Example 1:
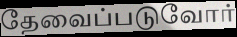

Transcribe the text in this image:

தேவைப்படுவோர்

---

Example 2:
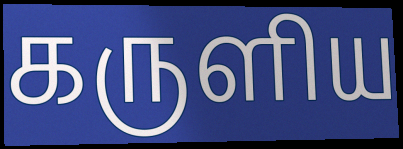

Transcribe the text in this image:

கருளிய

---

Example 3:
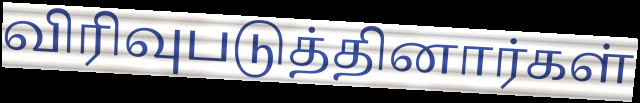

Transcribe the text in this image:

விரிவுபடுத்தினார்கள்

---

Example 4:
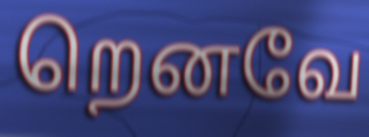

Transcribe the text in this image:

றெனவே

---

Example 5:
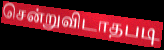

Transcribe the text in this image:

சென்றுவிடாதபடி